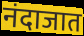
नंदाजात